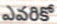
ఎవరికో